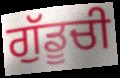
ਗੁੱਡੂਚੀ